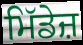
ਮਿੱਡੇਜ਼